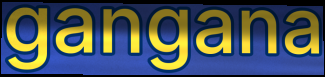
gangana